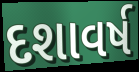
દશાવર્ષ